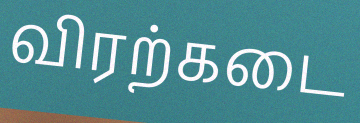
விரற்கடை